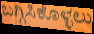
ಬಗ್ಗಿಸಿಕೊಳ್ಳಲು